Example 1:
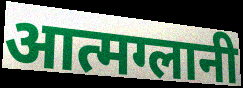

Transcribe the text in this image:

आत्मग्लानी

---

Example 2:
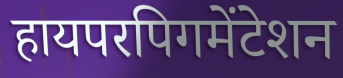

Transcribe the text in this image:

हायपरपिगमेंटेशन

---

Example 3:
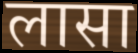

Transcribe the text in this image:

लासा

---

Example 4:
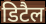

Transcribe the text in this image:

डिटैल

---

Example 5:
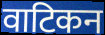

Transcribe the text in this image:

वाटिकन